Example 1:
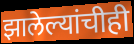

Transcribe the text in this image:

झालेल्यांचीही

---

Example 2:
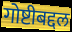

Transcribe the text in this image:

गोष्टीबद्दल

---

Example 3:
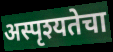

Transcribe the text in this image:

अस्पृश्यतेचा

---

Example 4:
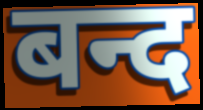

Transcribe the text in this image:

बन्द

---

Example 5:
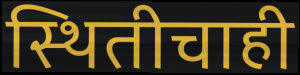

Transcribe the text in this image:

स्थितीचाही